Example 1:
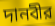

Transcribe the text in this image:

দানবীর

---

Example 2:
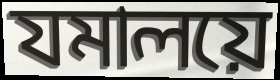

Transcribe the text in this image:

যমালয়ে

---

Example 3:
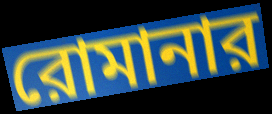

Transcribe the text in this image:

রোমানার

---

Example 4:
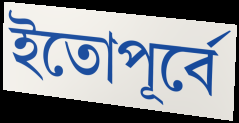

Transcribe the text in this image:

ইতোপূর্বে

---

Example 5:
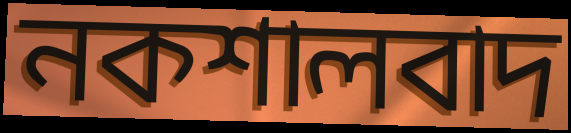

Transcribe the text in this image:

নকশালবাদ